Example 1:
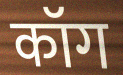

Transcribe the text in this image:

कॉग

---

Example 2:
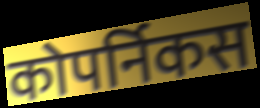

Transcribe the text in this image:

कोपर्निकस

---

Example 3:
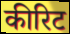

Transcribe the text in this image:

कीरिट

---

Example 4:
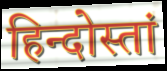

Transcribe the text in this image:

हिन्दोस्तां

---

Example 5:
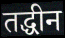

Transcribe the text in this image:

तद्धीन